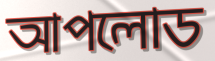
আপলোড